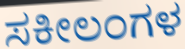
ಸಕೀಲಂಗಳ